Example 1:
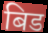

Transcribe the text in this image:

बिड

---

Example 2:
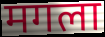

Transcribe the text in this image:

मगला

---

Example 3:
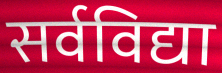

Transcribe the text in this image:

सर्वविद्या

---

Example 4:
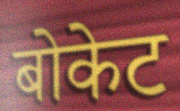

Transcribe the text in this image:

बोकेट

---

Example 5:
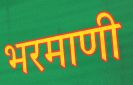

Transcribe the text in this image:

भरमाणी